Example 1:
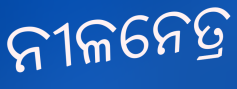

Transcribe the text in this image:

ନୀଳନେତ୍ର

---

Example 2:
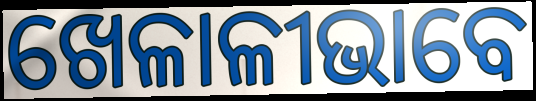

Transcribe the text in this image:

ଖେଳାଳୀଭାବେ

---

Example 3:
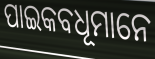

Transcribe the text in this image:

ପାଇକବଧୂମାନେ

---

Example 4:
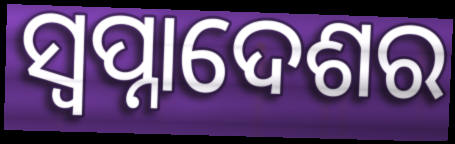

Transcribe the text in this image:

ସ୍ଵପ୍ନାଦେଶର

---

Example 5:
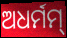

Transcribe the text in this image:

ଅଧର୍ମମ୍